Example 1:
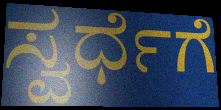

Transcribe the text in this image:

ಸ್ವರ್ಧೆಗೆ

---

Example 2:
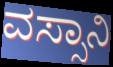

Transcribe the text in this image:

ವಸ್ಸಾನಿ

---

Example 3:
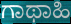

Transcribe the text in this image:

ಗಾಥಾಹಿ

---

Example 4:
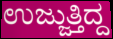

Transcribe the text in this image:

ಉಜ್ಜುತ್ತಿದ್ದ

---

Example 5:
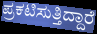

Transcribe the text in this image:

ಪ್ರಕಟಿಸುತ್ತಿದ್ದಾರೆ